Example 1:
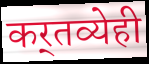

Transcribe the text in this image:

कर्तव्येही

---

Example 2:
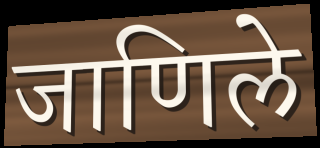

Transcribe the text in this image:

जाणिले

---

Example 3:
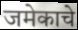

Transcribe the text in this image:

जमेकाचे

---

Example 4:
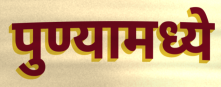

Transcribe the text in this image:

पुण्यामध्ये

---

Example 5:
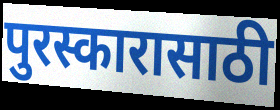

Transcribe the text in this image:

पुरस्कारासाठी